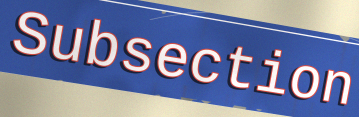
Subsection